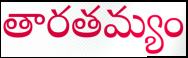
తారతమ్యం